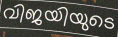
വിജയിയുടെ